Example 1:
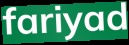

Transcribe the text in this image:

fariyad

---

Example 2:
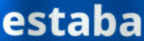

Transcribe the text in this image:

estaba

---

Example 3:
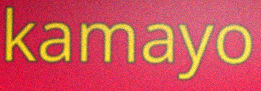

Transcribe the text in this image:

kamayo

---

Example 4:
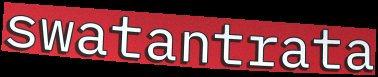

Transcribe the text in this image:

swatantrata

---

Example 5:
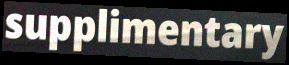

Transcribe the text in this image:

supplimentary